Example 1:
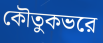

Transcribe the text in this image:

কৌতুকভরে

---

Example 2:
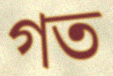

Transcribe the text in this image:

গত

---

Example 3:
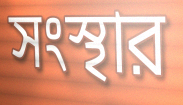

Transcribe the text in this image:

সংস্থার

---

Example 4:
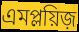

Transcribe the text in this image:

এমপ্লয়িজ়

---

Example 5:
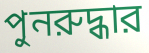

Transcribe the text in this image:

পুনরুদ্ধার